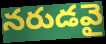
నరుడవై